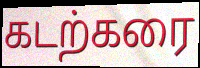
கடற்கரை